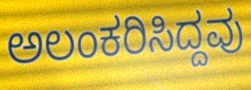
ಅಲಂಕರಿಸಿದ್ದವು